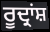
ਰੂਦ੍ਰਾਂਸ਼